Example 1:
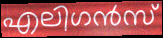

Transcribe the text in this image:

എലിഗൻസ്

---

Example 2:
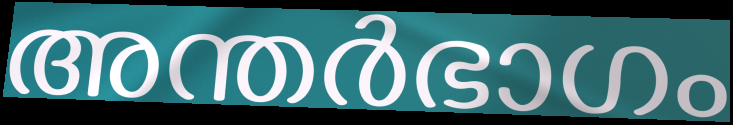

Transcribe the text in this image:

അന്തർഭാഗം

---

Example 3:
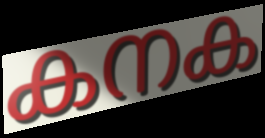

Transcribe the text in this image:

കനക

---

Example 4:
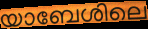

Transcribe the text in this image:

യാബേശിലെ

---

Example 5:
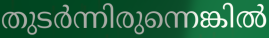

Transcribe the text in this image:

തുടർന്നിരുന്നെങ്കിൽ